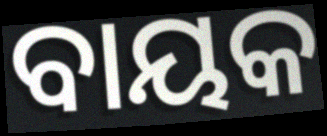
ବାୟକ